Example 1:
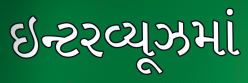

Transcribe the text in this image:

ઇન્ટરવ્યૂઝમાં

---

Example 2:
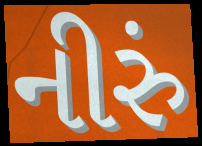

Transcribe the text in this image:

નીરું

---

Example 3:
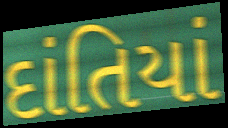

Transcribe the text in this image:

દાંતિયાં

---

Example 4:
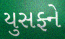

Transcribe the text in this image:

યુસફ્ને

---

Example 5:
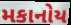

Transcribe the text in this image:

મકાનોય